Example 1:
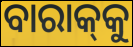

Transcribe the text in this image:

ବାରାକ୍‌କୁ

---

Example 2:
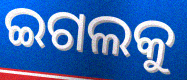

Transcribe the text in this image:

ଇଗଲକୁ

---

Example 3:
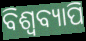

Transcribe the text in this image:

ବିଶ୍ବବ୍ୟାପି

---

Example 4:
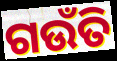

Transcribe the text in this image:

ଗଉଁତି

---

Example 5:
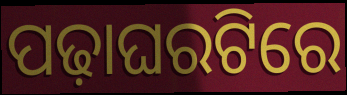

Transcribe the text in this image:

ପଢ଼ାଘରଟିରେ